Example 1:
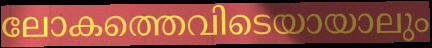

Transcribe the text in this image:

ലോകത്തെവിടെയായാലും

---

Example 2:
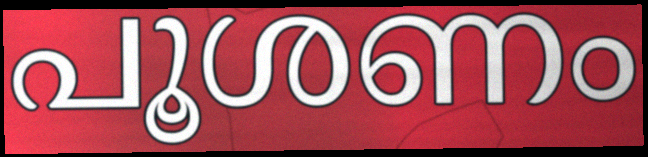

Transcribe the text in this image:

പൂശണം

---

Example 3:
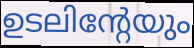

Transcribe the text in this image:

ഉടലിന്റേയും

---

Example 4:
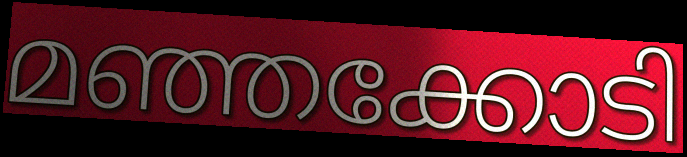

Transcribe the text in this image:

മഞ്ഞക്കോടി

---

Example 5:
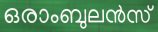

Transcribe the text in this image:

ഒരാംബുലൻസ്